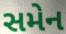
સમેન